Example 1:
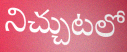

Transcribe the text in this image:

నిచ్చుటలో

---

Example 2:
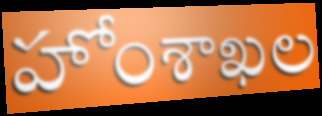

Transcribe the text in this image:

హోంశాఖల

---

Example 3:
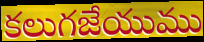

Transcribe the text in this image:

కలుగజేయుము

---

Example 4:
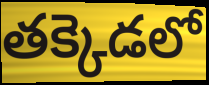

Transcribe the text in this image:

తక్కెడలో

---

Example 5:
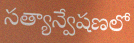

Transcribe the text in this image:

సత్యాన్వేషణలో